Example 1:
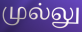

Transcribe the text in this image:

முல்லு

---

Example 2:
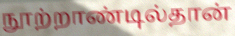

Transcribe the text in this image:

நூற்றாண்டில்தான்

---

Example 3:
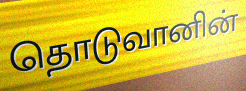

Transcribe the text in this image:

தொடுவானின்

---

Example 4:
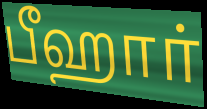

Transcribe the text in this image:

பீஹார்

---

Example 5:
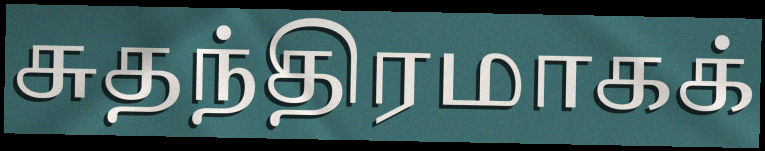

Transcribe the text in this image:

சுதந்திரமாகக்